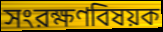
সংরক্ষণবিষয়ক